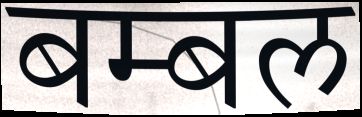
बम्बल